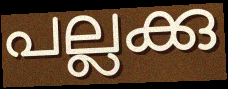
പല്ലക്കു